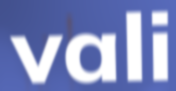
vali